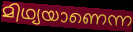
മിഥ്യയാണെന്ന